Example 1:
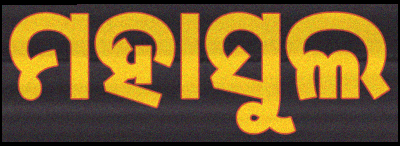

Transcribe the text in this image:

ମହାସୁଲ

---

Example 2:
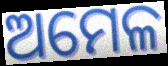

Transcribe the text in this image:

ଅମେଳ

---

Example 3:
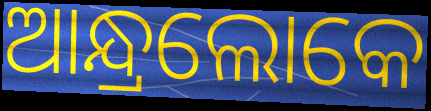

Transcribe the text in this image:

ଆନ୍ଧ୍ରଲୋକେ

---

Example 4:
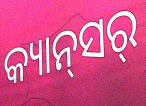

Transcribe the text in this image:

କ୍ୟାନ୍‍ସର୍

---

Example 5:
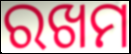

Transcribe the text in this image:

ରଖମ